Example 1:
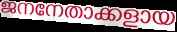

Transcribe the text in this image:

ജനനേതാക്കളായ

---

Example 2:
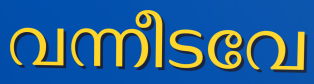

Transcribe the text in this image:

വന്നീടവേ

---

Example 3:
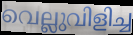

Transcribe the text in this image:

വെല്ലുവിളിച്ച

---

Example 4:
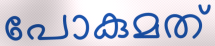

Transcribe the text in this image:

പോകുമത്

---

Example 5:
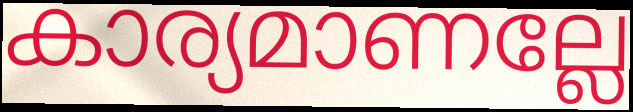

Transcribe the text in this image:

കാര്യമാണല്ലേ